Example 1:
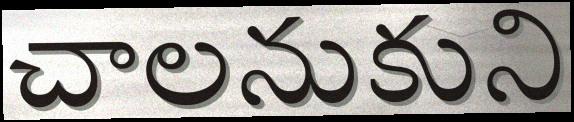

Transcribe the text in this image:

చాలనుకుని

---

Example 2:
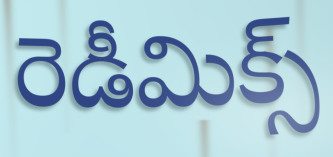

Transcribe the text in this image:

రెడీమిక్స్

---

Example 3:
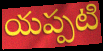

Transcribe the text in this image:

యప్పటి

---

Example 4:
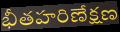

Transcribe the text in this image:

భీతహరిణేక్షణ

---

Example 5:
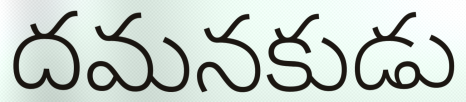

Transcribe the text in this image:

దమనకుడు